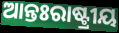
ଆନ୍ତଃରାଷ୍ଟ୍ରୀୟ